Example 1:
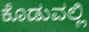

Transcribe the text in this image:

ಕೊಡುವಲ್ಲಿ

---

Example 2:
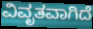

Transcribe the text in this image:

ವಿವೃತವಾಗಿದೆ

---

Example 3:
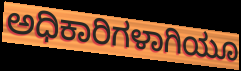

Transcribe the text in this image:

ಅಧಿಕಾರಿಗಳಾಗಿಯೂ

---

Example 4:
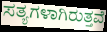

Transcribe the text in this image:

ಸತ್ಯಗಳಾಗಿರುತ್ತವೆ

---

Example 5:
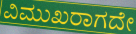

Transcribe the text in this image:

ವಿಮುಖರಾಗದೇ